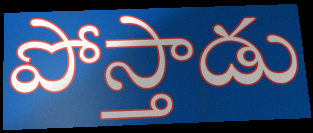
పోస్తాడు